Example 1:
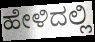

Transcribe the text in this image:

ಹೇಳಿದಲ್ಲಿ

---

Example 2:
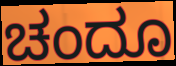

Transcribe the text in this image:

ಚಂದೂ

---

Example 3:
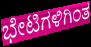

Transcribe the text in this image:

ಭೇಟಿಗಳಿಗಿಂತ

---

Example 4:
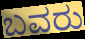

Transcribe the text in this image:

ಬವರು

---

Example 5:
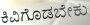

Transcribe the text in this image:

ಕಿವಿಗೊಡಬೇಕು